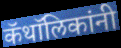
कॅथॉलिकांनी